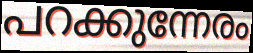
പറക്കുന്നേരം